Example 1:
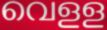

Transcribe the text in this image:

വെളള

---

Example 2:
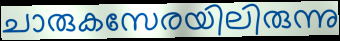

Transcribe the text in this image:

ചാരുകസേരയിലിരുന്നു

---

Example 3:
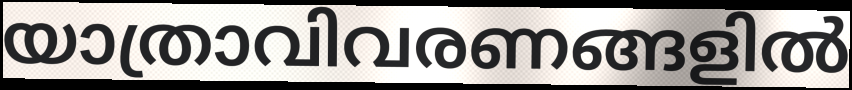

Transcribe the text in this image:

യാത്രാവിവരണങ്ങളിൽ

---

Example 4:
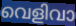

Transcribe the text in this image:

വെളിവാ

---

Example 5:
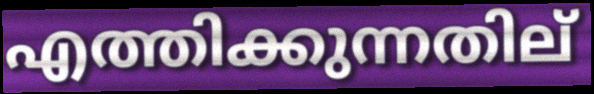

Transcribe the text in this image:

എത്തിക്കുന്നതില്